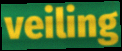
veiling